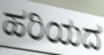
ಹರಿಯದ